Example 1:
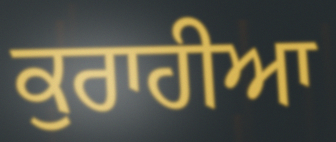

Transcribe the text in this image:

ਕੁਰਾਹੀਆ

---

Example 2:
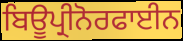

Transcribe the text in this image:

ਬਿਊਪ੍ਰੀਨੋਰਫਾਈਨ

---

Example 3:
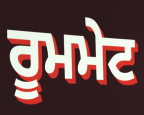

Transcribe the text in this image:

ਰੂਮਮੇਟ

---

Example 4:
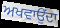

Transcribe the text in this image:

ਅਖਵਾਉਂਦਾ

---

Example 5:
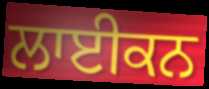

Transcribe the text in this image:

ਲਾਈਕਨ